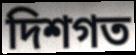
দিশগত